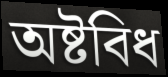
অষ্টবিধ